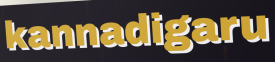
kannadigaru